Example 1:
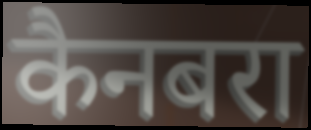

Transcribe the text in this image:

कैनबरा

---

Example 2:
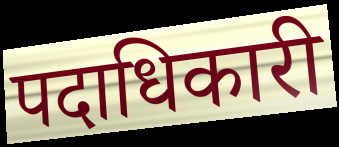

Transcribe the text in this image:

पदाधिकारी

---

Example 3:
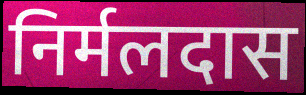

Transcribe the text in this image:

निर्मलदास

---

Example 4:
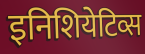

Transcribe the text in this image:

इनिशियेटिव्स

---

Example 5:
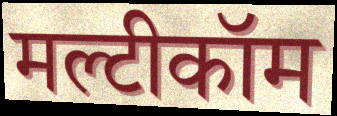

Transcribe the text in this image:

मल्टीकॉम